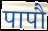
पापौ